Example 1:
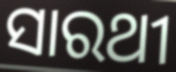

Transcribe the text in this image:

ସାରଥୀ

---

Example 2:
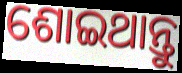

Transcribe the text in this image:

ଶୋଇଥାନ୍ତୁ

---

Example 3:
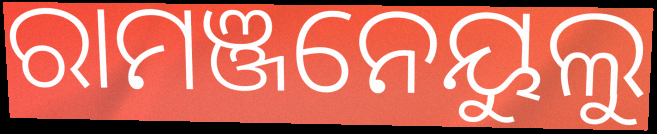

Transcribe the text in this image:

ରାମଞ୍ଜନେୟୁଲୁ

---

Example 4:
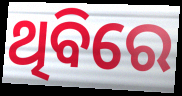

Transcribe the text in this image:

ଥିବିରେ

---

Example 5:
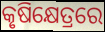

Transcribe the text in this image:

କୃଷିକ୍ଷେତ୍ରରେ